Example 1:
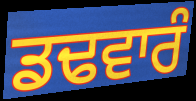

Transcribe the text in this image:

ਡਢਵਾਰੰ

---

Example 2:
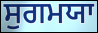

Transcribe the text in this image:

ਸੁਗਮਯਾ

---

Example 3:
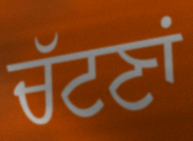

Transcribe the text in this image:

ਚੱਟਣਾਂ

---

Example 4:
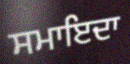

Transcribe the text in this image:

ਸਮਾਇਦਾ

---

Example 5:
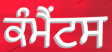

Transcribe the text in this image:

ਕੰਮੈਂਟਸ